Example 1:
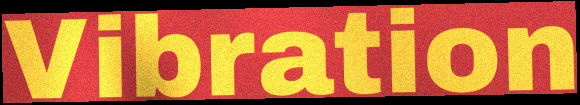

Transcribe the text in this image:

Vibration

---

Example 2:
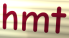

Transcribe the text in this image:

hmt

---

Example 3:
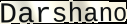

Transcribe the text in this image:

Darshano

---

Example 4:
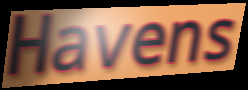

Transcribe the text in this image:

Havens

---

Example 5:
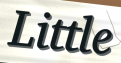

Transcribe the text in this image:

Little